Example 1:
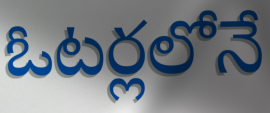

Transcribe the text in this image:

ఓటర్లలోనే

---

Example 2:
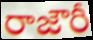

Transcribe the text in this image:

రాజౌరీ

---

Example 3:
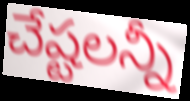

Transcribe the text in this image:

చేష్టలన్నీ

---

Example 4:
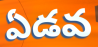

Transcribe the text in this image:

ఏడవ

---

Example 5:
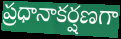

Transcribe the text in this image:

ప్రధానాకర్షణగా